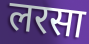
लरसा